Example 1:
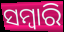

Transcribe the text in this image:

ସମ୍ବାରି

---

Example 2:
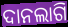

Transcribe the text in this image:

ଦାନଲାଗି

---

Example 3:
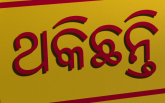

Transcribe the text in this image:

ଥକିଛନ୍ତି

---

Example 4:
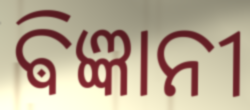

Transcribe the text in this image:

ଵିଜ୍ଞାନୀ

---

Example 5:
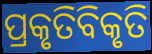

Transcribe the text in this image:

ପ୍ରକୃତିବିକୃତି